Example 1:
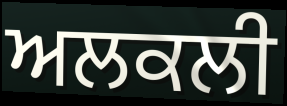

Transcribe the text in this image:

ਅਲਕਲੀ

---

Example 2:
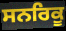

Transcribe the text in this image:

ਸਨਰਿਕੂ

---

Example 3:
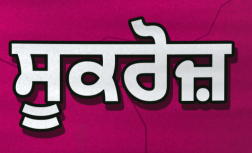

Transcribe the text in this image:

ਸੂਕਰੋਜ਼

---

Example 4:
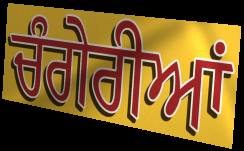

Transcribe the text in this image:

ਚੰਗੇਰੀਆਂ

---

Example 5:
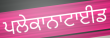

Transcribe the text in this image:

ਪਲੇਕਾਨਾਟਾਈਡ